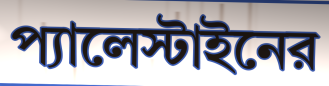
প্যালেস্টাইনের